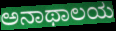
ಅನಾಥಾಲಯ